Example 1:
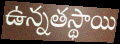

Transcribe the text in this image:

ఉన్నతస్థాయి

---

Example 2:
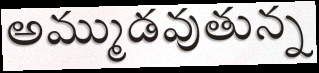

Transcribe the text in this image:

అమ్ముడవుతున్న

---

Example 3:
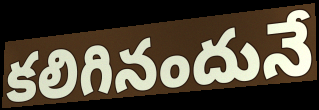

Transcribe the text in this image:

కలిగినందునే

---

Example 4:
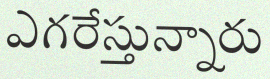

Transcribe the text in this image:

ఎగరేస్తున్నారు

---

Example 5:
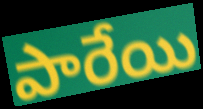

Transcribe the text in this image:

పారేయి